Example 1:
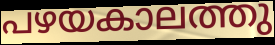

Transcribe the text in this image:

പഴയകാലത്തു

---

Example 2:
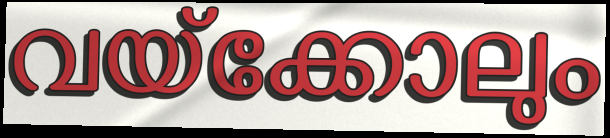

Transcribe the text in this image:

വയ്‌ക്കോലും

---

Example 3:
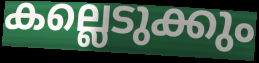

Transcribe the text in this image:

കല്ലെടുക്കും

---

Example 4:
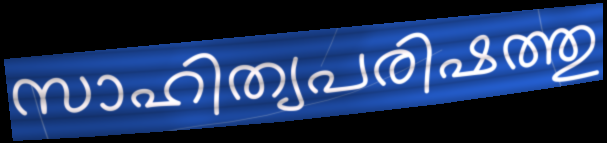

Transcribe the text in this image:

സാഹിത്യപരിഷത്തു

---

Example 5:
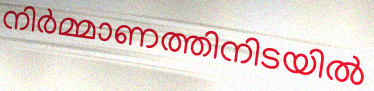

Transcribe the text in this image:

നിർമ്മാണത്തിനിടയിൽ